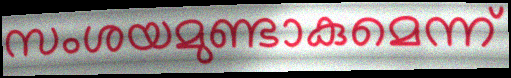
സംശയമുണ്ടാകുമെന്ന്